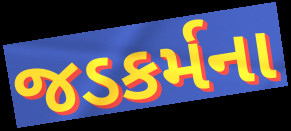
જડકર્મના